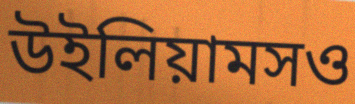
উইলিয়ামসও